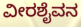
ವೀರಶೈವನ